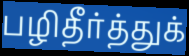
பழிதீர்த்துக்